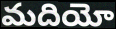
మదియో